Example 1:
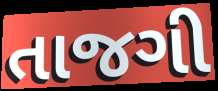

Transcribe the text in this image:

તાજગી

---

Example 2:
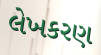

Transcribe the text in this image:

લેખકરણ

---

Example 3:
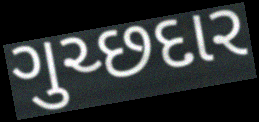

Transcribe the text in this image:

ગુચ્છદાર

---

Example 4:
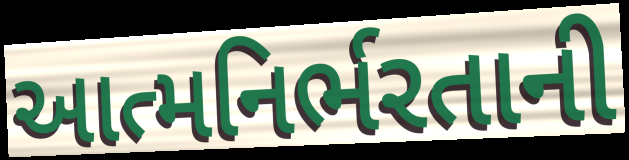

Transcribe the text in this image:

આત્મનિર્ભરતાની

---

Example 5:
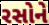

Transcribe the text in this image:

રસોને